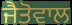
ਜੈਤੋਵਾਲ